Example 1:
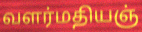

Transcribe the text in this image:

வளர்மதியஞ்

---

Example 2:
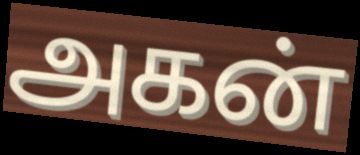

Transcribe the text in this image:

அகன்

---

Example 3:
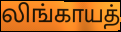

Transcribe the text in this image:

லிங்காயத்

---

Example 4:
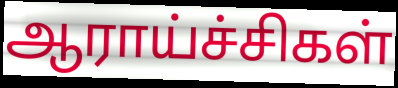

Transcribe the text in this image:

ஆராய்ச்சிகள்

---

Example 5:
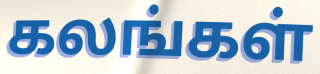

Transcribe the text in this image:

கலங்கள்